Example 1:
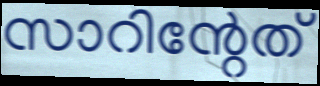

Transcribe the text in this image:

സാറിന്റേത്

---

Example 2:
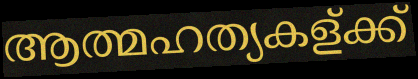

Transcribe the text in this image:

ആത്മഹത്യകള്ക്ക്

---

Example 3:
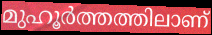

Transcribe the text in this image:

മുഹൂർത്തത്തിലാണ്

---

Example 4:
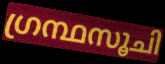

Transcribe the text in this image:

ഗ്രന്ഥസൂചി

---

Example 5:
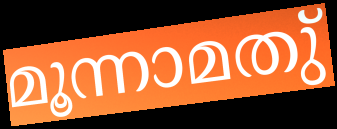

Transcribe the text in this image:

മൂന്നാമതു്